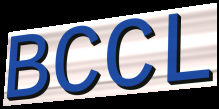
BCCL